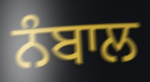
ਨੰਬਾਲ